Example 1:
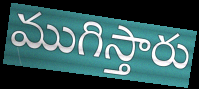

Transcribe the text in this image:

ముగిస్తారు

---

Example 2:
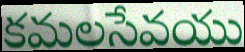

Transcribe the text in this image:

కమలసేవయు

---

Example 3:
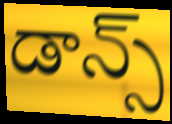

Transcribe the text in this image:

డాన్స్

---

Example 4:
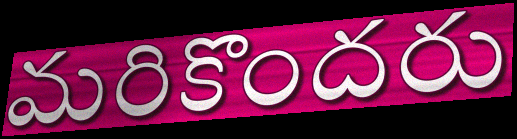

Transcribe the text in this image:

మరికొందరు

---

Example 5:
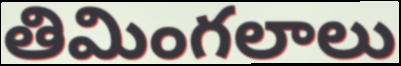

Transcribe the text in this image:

తిమింగలాలు